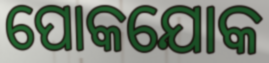
ପୋକଯୋକ